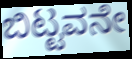
ಬಿಟ್ಟವನೇ